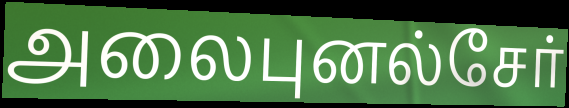
அலைபுனல்சேர்